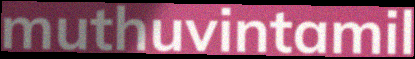
muthuvintamil